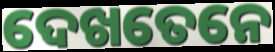
ଦେଖତେନେ